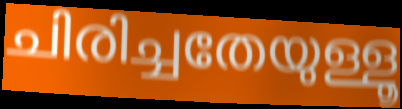
ചിരിച്ചതേയുള്ളൂ